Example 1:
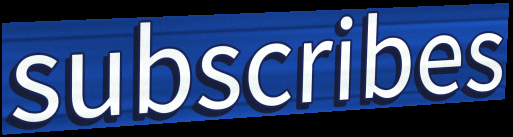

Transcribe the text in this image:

subscribes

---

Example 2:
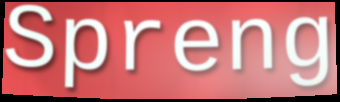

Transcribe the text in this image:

Spreng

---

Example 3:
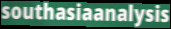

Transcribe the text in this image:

southasiaanalysis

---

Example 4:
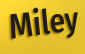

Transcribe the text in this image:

Miley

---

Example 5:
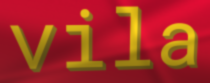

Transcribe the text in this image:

vila